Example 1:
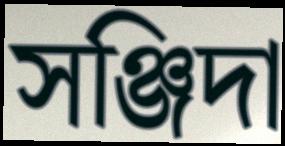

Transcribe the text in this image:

সঞ্জিদা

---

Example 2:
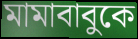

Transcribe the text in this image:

মামাবাবুকে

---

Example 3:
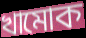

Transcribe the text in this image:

খামোক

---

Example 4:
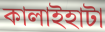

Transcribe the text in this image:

কালাইহাটা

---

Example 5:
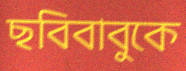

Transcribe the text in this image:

ছবিবাবুকে